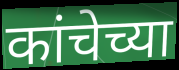
कांचेच्या